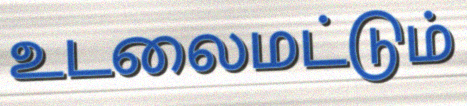
உடலைமட்டும்